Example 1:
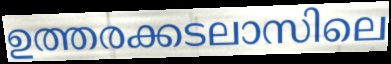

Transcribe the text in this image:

ഉത്തരക്കടലാസിലെ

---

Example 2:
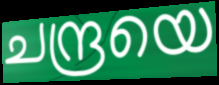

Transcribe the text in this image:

ചന്ദ്രയെ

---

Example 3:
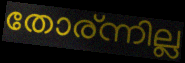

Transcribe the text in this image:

തോര്ന്നില്ല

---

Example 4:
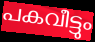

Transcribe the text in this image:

പകവീട്ടും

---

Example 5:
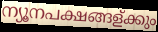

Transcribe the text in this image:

ന്യൂനപക്ഷങ്ങള്ക്കും